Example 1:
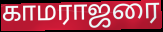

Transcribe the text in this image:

காமராஜரை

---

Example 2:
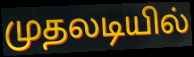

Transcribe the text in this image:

முதலடியில்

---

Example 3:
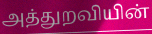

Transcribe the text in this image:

அத்துறவியின்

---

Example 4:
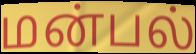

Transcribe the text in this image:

மன்பல்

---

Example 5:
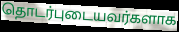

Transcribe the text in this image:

தொடர்புடையவர்களாக